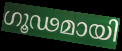
ഗൂഢമായി